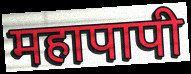
महापापी